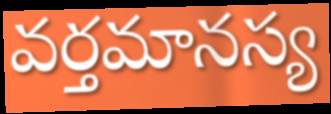
వర్తమానస్య